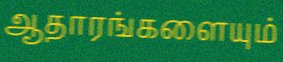
ஆதாரங்களையும்